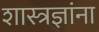
शास्त्रज्ञांना